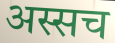
अस्सच